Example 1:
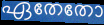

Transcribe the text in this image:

ഏതേതോ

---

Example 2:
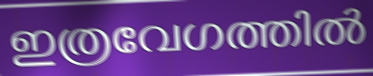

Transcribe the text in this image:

ഇത്രവേഗത്തിൽ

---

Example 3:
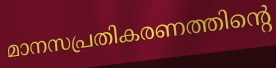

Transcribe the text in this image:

മാനസപ്രതികരണത്തിന്റെ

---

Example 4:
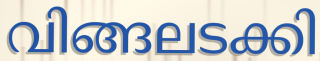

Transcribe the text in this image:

വിങ്ങലടക്കി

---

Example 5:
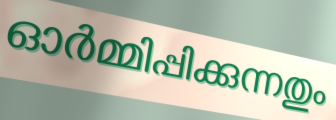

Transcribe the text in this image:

ഓർമ്മിപ്പിക്കുന്നതും